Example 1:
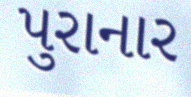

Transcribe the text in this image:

પુરાનાર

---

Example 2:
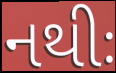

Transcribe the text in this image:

નથીઃ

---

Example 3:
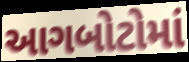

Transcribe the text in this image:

આગબોટોમાં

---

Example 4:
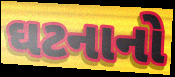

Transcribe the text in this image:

ઘટનાનો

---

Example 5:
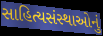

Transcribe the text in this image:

સાહિત્યસંસ્થાઓનું